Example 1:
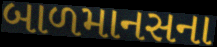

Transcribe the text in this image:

બાળમાનસના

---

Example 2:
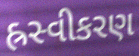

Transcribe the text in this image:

હ્રસ્વીકરણ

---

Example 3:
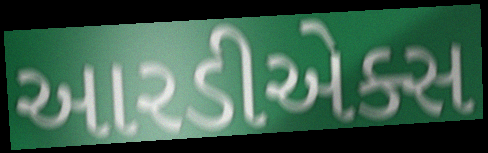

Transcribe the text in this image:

આરડીએક્સ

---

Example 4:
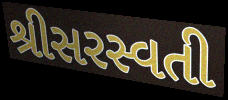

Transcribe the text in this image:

શ્રીસરસ્વતી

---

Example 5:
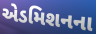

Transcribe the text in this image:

એડમિશનના